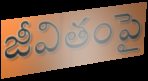
జీవితంపై